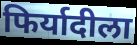
फिर्यादीला